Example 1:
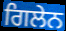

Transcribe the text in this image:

ਗਿਲੇਨ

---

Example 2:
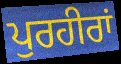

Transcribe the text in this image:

ਪੁਰਹੀਰਾਂ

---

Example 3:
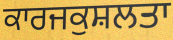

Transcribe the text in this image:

ਕਾਰਜਕੁਸ਼ਲਤਾ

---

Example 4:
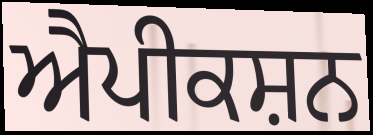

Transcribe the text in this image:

ਐਪੀਕਸ਼ਨ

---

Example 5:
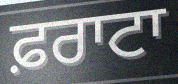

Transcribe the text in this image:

ਫ਼ਰਾਟਾ